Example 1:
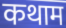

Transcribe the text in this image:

कथाम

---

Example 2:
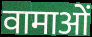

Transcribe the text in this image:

वामाओं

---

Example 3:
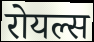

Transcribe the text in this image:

रोयल्स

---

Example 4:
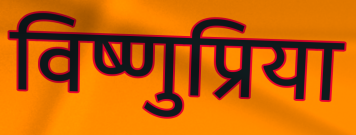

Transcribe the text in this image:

विष्णुप्रिया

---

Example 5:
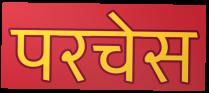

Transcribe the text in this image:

परचेस